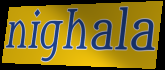
nighala